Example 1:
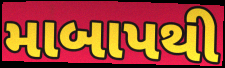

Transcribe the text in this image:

માબાપથી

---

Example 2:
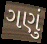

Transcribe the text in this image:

ગણું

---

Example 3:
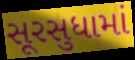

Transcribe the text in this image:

સૂરસુધામાં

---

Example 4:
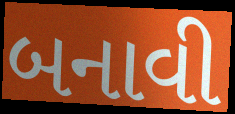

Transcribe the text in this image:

બનાવી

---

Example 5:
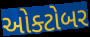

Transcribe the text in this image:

ઓક્ટોબર